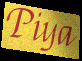
Piya